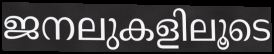
ജനലുകളിലൂടെ